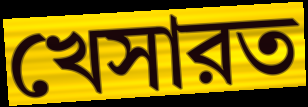
খেসারত